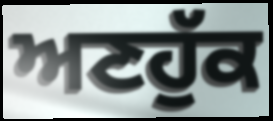
ਅਣਹੁੱਕ